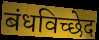
बंधविच्छेद